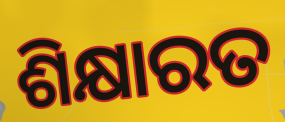
ଶିକ୍ଷାରତ